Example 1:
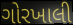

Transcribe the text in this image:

ગોરખાલી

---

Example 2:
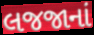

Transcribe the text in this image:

લજજાનાં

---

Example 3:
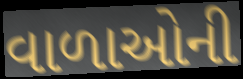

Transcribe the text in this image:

વાળાઓની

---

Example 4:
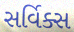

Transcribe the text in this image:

સર્વિક્સ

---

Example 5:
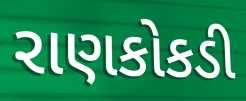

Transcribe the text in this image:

રાણકોકડી